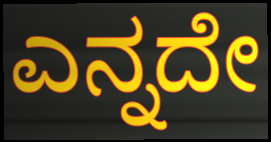
ಎನ್ನದೇ